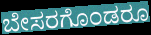
ಬೇಸರಗೊಂಡರೂ